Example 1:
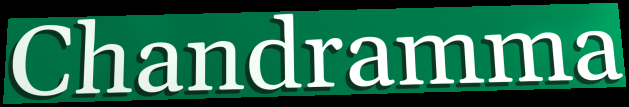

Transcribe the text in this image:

Chandramma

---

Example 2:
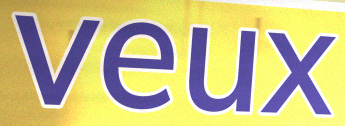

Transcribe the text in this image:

veux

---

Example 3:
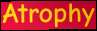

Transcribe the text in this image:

Atrophy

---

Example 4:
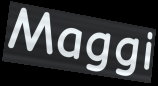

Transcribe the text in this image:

Maggi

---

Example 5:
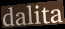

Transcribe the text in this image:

dalita